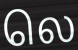
லெ